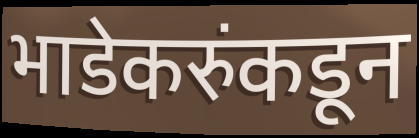
भाडेकरुंकडून